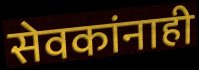
सेवकांनाही